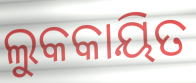
ଲୁକକାୟିତ